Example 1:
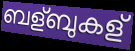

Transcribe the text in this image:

ബള്ബുകള്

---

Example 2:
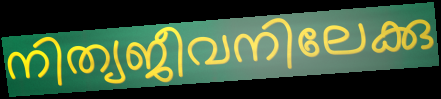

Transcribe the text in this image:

നിത്യജീവനിലേക്കു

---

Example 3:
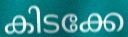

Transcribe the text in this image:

കിടക്കേ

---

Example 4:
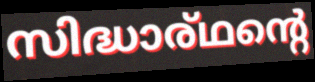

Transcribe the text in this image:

സിദ്ധാര്ഥന്റെ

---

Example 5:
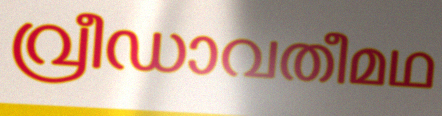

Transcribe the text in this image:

വ്രീഡാവതീമഥ